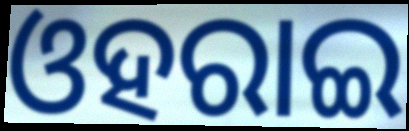
ଓହରାଇ